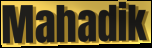
Mahadik